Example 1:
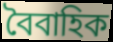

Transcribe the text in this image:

বৈবাহিক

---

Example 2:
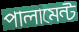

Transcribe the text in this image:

পালামেন্ট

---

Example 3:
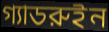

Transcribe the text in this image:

গ্যাডরুইন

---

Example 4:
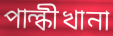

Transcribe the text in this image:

পাল্কীখানা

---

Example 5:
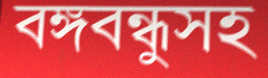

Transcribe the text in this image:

বঙ্গবন্ধুসহ